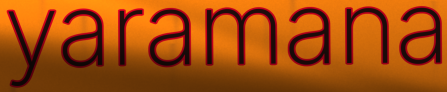
yaramana